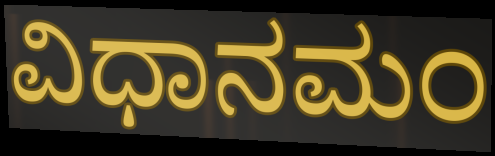
ವಿಧಾನಮಂ